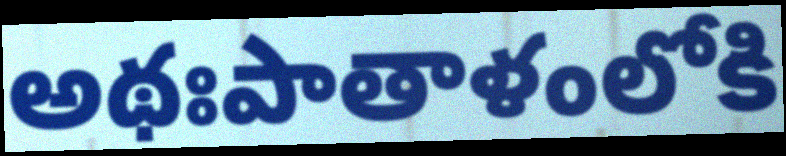
అథఃపాతాళంలోకి